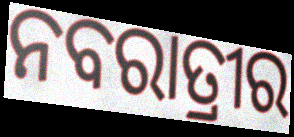
ନବରାତ୍ରୀର